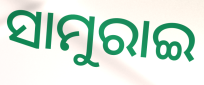
ସାମୁରାଇ